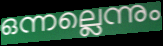
ഒന്നല്ലെന്നും